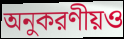
অনুকরণীয়ও